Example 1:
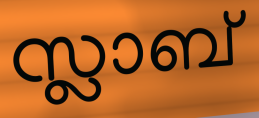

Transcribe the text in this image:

സ്ലാബ്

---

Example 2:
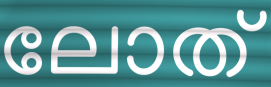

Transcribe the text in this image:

ലോത്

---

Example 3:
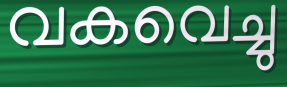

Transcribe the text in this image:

വകവെച്ചു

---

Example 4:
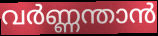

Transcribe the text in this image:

വർണ്ണന്താൻ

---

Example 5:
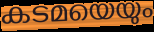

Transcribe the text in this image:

കടമയെയും